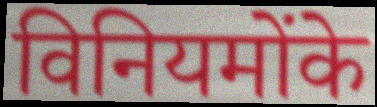
विनियमोंके